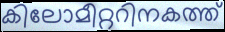
കിലോമീറ്ററിനകത്ത്